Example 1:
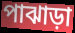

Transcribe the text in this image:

পাঝাড়া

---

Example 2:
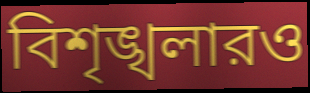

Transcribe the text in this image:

বিশৃঙ্খলারও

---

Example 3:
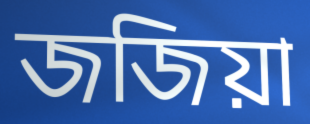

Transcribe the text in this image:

জজিয়া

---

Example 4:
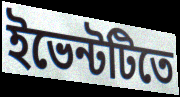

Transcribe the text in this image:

ইভেন্টটিতে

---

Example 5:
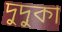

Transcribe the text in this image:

দুদুকা